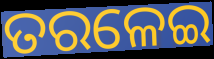
ତରଳେଇ